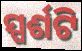
ସ୍ପର୍ଶଟି